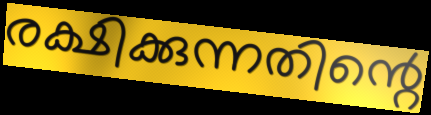
രക്ഷിക്കുന്നതിന്റെ